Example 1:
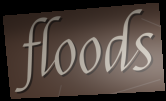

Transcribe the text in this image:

floods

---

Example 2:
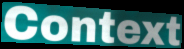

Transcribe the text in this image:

Context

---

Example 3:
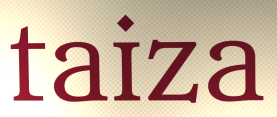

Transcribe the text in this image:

taiza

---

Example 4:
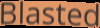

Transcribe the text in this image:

Blasted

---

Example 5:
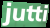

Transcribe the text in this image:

jutti